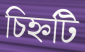
চিহ্নটি